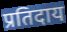
प्रतिदाय